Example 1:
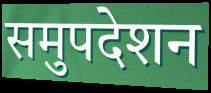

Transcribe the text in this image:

समुपदेशन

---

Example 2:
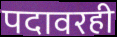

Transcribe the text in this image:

पदावरही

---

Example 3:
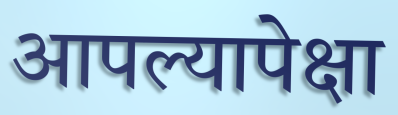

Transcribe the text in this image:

आपल्यापेक्षा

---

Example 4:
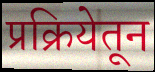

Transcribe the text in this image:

प्रक्रियेतून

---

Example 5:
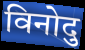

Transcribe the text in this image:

विनोदु